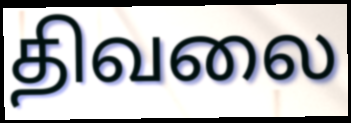
திவலை